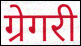
ग्रेगरी